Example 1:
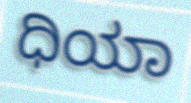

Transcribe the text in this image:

ಧಿಯಾ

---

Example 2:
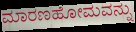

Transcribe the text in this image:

ಮಾರಣಹೋಮವನ್ನು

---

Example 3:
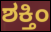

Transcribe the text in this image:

ಶಕ್ತಿಂ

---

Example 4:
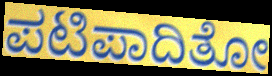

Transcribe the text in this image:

ಪಟಿಪಾದಿತೋ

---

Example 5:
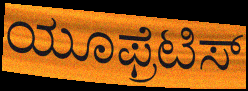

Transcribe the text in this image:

ಯೂಫ್ರೆಟಿಸ್